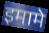
इमामे